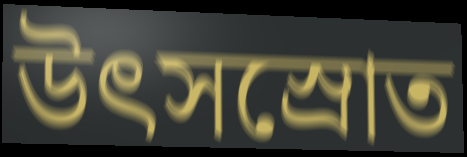
উৎসস্রোত